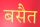
बसैत